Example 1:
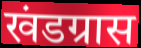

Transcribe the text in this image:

खंडग्रास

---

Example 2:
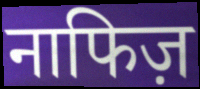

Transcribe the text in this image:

नाफिज़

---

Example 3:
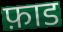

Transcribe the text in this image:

फ़ाड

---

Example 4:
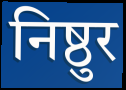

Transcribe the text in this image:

निष्ठुर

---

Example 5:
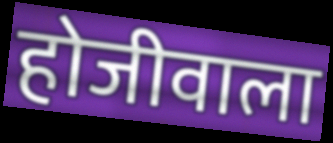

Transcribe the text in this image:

होजीवाला